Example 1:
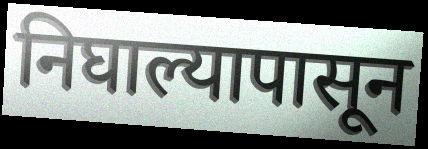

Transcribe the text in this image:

निघाल्यापासून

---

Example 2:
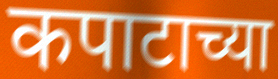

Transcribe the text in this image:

कपाटाच्या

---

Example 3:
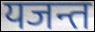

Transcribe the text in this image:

यजन्त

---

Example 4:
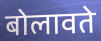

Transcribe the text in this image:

बोलावते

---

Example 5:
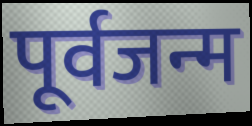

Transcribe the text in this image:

पूर्वजन्म